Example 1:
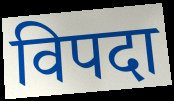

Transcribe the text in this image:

विपदा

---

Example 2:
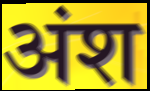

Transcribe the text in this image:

अंश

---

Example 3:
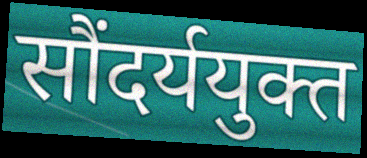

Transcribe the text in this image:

सौंदर्ययुक्त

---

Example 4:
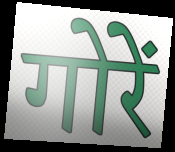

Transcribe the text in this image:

गोरें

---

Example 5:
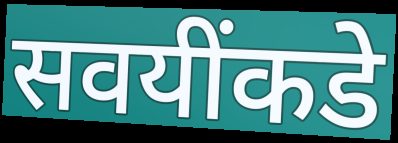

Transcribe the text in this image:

सवयींकडे